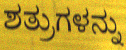
ಶತ್ರುಗಳನ್ನು